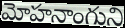
మోహనాంగుని